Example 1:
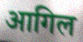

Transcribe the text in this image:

आगिल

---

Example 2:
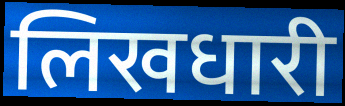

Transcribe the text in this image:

लिखधारी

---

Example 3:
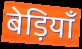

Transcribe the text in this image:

बेड़ियाँ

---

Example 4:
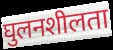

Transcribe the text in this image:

घुलनशीलता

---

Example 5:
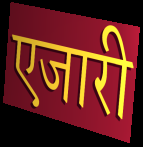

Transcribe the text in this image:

एजारी